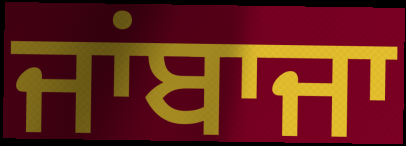
ਜਾਂਬਾਜਾ